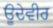
ਊਦੇਵੀਰ